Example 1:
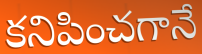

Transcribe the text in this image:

కనిపించగానే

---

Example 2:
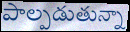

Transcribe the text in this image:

పాల్పడుతున్నా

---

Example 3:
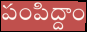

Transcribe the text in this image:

పంపిద్దాం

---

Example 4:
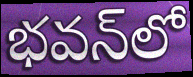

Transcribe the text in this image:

భవన్‌లో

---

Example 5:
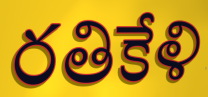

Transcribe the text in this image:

రతికేళి